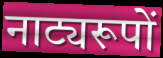
नाट्यरूपों